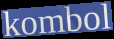
kombol